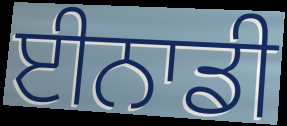
ਈਨਾਡੀ